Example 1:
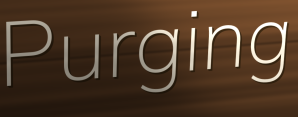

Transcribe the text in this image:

Purging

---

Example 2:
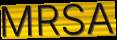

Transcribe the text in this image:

MRSA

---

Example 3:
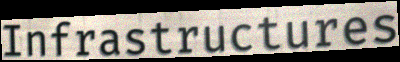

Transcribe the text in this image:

Infrastructures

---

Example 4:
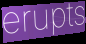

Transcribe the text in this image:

erupts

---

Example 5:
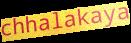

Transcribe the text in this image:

chhalakaya